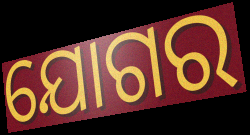
ଯୋଗର